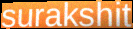
surakshit